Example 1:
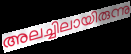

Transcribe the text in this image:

അലച്ചിലായിരുന്നു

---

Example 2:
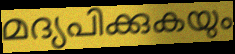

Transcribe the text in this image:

മദ്യപിക്കുകയും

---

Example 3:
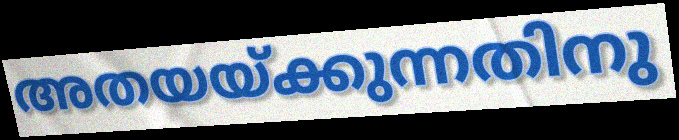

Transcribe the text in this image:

അതയയ്ക്കുന്നതിനു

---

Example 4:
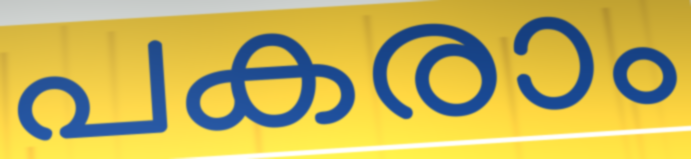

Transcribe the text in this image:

പകരാം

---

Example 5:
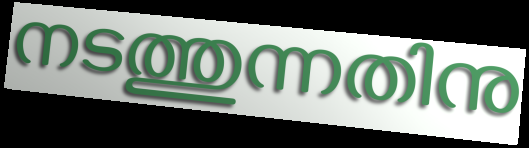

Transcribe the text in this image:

നടത്തുന്നതിനു